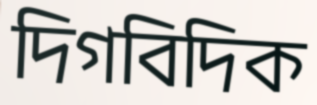
দিগবিদিক